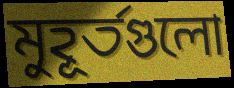
মুহূর্তগুলো